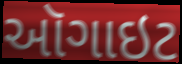
ઑગાઇટ